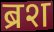
ब्रश